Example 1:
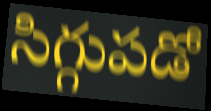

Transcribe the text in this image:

సిగ్గుపడో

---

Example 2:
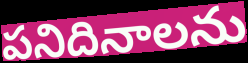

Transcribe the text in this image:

పనిదినాలను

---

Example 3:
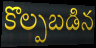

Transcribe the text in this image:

కొల్పబడిన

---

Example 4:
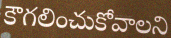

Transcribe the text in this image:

కౌగలించుకోవాలని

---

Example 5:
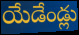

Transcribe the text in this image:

యేడేండ్లు